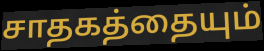
சாதகத்தையும்